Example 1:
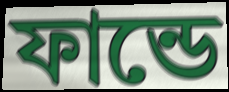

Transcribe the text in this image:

ফান্ডে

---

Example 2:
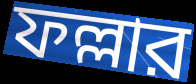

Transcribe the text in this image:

ফল্লার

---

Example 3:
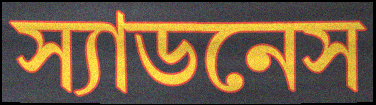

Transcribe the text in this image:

স্যাডনেস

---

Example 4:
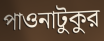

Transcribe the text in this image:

পাওনাটুকুর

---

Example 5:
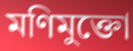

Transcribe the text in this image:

মণিমুক্তো